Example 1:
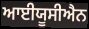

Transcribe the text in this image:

ਆਈਯੂਸੀਐਨ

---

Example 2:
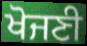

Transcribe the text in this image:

ਖੋਜਣੀ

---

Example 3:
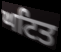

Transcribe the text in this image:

ਘਟਿਤ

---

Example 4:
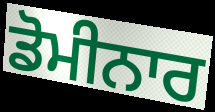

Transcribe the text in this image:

ਡੋਮੀਨਾਰ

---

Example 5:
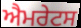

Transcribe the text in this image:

ਐਮਰੇਟਸ